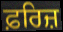
ਫ਼ਰਿਜ਼